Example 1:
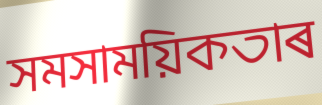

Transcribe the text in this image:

সমসাময়িকতাৰ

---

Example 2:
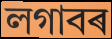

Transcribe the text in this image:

লগাবৰ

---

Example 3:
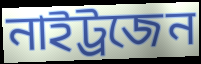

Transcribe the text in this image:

নাইট্ৰজেন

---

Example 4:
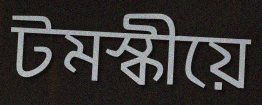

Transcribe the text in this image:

টমস্কীয়ে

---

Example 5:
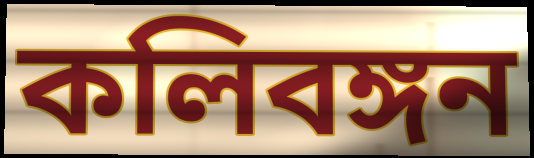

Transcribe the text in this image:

কলিবঙ্গন